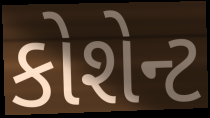
કોશેન્ટ